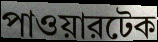
পাওয়ারটেক